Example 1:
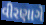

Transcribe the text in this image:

વીરણાગે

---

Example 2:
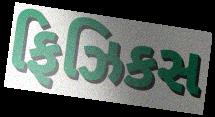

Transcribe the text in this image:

ફિઝિકસ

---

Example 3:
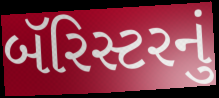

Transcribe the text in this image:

બૅરિસ્ટરનું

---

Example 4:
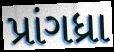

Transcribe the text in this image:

પ્રાંગધ્રા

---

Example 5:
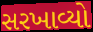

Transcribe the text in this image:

સરખાવ્યો